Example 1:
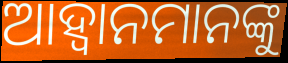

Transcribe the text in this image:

ଆହ୍ୱାନମାନଙ୍କୁ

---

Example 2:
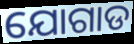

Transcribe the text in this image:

ଯୋଗାଡ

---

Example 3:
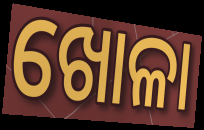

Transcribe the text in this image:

ଖୋଳା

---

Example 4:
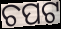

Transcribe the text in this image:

ଚପଟ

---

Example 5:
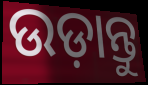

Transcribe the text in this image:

ଉଡ଼ାନ୍ତୁ